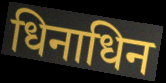
धिनाधिन